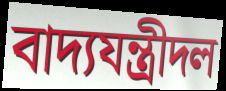
বাদ্যযন্ত্রীদল